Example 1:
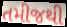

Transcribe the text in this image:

તમીજથી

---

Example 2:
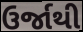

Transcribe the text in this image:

ઉર્જાથી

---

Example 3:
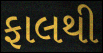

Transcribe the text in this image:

ફાલથી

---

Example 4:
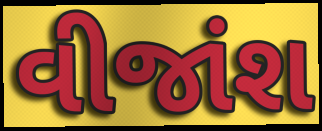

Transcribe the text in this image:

વીજાંશ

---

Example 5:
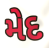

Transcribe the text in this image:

મેદ